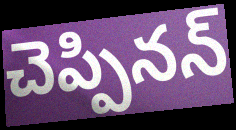
చెప్పినన్